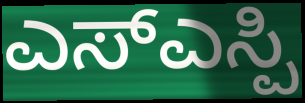
ಎಸ್ಎಸ್ಪಿ